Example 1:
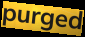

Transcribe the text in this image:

purged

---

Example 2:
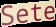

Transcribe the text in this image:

Sete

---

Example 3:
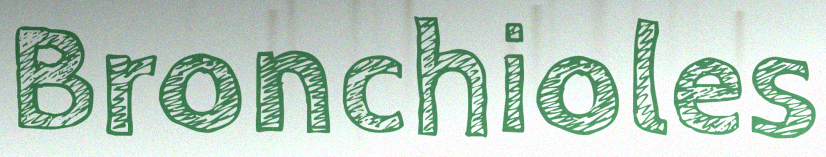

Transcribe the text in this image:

Bronchioles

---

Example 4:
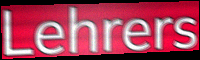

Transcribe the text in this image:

Lehrers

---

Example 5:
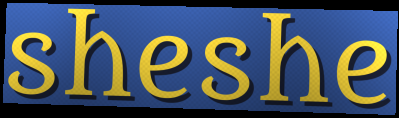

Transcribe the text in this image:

sheshe